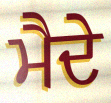
ਮੈਦੇ